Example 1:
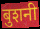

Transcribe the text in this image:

बुशनी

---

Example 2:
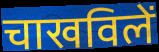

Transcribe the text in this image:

चाखविलें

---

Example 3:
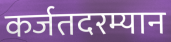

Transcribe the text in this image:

कर्जतदरम्यान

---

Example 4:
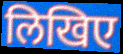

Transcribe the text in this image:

लिखिए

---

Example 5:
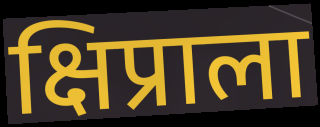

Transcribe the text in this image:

क्षिप्राला